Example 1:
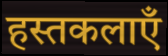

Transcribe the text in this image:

हस्तकलाएँ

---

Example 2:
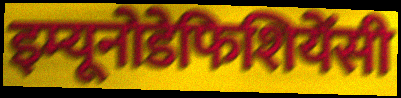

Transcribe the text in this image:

इम्यूनोडेफिशियेंसी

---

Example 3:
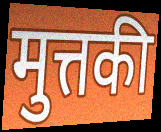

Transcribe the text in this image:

मुत्तकी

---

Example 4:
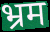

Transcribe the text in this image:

भ्रम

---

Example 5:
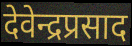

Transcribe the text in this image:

देवेन्द्रप्रसाद